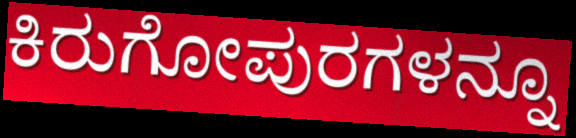
ಕಿರುಗೋಪುರಗಳನ್ನೂ